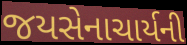
જયસેનાચાર્યની